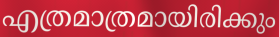
എത്രമാത്രമായിരിക്കും